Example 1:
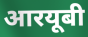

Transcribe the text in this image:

आरयूबी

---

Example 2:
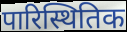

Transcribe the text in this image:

पारिस्थितिक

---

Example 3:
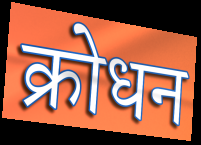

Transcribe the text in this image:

क्रोधन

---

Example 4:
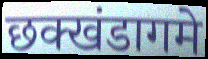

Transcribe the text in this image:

छक्खंडागमे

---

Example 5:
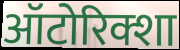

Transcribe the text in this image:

ऑटोरिक्‍शा